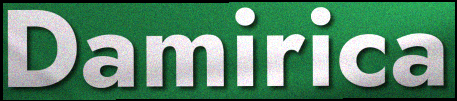
Damirica